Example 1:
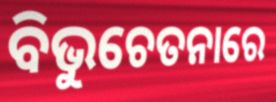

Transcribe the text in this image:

ବିଭୁଚେତନାରେ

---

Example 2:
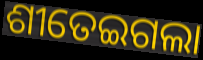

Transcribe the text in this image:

ଶୀତେଇଗଲା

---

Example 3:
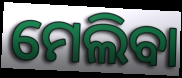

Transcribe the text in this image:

ମେଲିବା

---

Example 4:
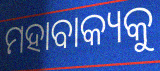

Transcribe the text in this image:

ମହାବାକ୍ୟକୁ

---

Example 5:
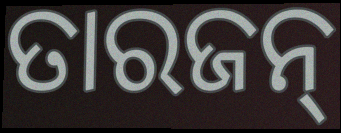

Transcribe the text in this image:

ତାରଜନ୍